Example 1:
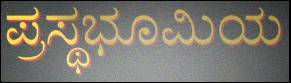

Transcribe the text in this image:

ಪ್ರಸ್ಥಭೂಮಿಯ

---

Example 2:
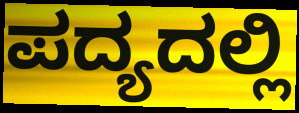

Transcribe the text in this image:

ಪದ್ಯದಲ್ಲಿ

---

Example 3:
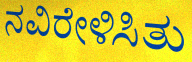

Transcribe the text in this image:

ನವಿರೇಳಿಸಿತು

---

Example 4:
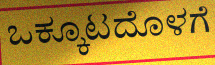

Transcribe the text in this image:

ಒಕ್ಕೂಟದೊಳಗೆ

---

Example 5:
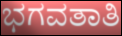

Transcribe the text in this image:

ಭಗವತಾತಿ